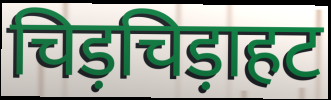
चिड़चिड़ाहट